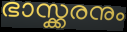
ഭാസ്ക്കരനും